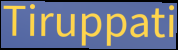
Tiruppati